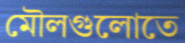
মৌলগুলোতে